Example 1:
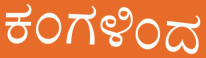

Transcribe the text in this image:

ಕಂಗಳಿಂದ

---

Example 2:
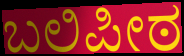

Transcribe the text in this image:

ಬಲಿಪೀಠ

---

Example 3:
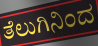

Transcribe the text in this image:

ತೆಲುಗಿನಿಂದ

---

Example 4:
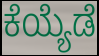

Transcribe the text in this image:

ಕೆಯ್ಯೆಡೆ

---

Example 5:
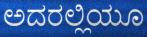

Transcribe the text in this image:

ಅದರಲ್ಲಿಯೂ